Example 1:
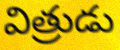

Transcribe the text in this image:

విత్రుడు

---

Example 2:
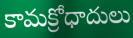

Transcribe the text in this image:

కామక్రోధాదులు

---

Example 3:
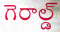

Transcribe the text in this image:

గెరాల్డ్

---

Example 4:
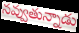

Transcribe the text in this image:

నవ్వుతున్నాడు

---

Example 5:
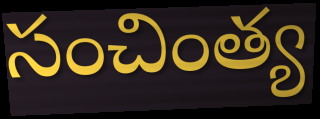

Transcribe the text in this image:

సంచింత్య